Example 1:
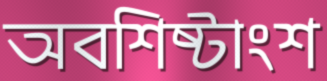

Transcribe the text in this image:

অবশিষ্টাংশ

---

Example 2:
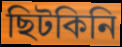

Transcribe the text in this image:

ছিটকিনি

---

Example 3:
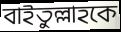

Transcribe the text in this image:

বাইতুল্লাহকে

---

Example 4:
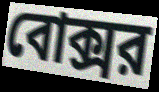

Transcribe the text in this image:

বোক্সর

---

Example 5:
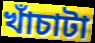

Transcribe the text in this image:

খাঁচাটা